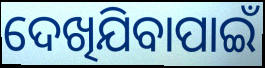
ଦେଖିଯିବାପାଇଁ